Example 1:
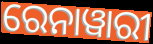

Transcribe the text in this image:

ରେନାୱାରୀ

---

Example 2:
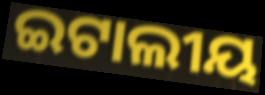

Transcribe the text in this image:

ଇଟାଲୀୟ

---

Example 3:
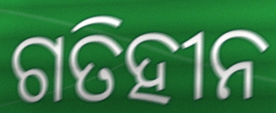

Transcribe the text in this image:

ଗତିହୀନ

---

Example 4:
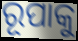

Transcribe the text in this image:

ରୂପାକୁ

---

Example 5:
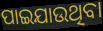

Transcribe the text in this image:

ପାଇଯାଉଥିବା